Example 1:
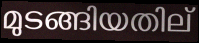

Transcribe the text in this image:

മുടങ്ങിയതില്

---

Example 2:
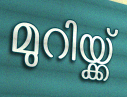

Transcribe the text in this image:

മുറിയ്ക്ക്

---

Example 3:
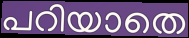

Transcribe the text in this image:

പറിയാതെ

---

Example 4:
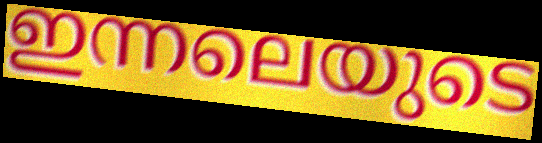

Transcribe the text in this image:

ഇന്നലെയുടെ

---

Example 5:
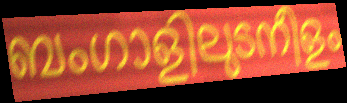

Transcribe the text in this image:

ബംഗാളിലുടനീളം